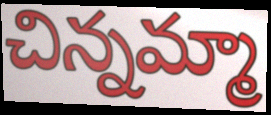
చిన్నమ్మా